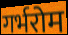
गर्भरोम